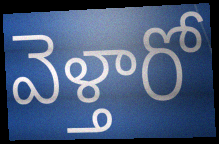
వెళ్తారో